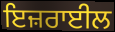
ਇਜ਼ਰਾਈਲ